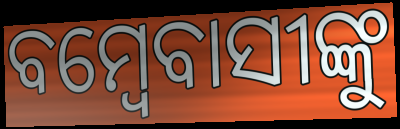
ବମ୍ବେବାସୀଙ୍କୁ